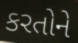
કરતોને